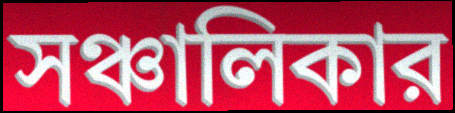
সঞ্চালিকার